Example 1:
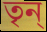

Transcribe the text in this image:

তৃন্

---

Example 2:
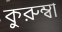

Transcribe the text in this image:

কুৰুম্বা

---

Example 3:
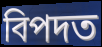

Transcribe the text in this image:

বিপদত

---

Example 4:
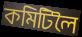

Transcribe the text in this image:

কমিটিলৈ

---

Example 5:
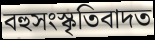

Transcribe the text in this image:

বহুসংস্কৃতিবাদত